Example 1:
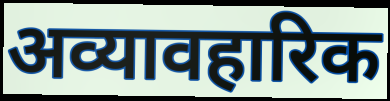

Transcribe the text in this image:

अव्यावहारिक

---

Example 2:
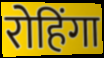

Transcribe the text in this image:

रोहिंगा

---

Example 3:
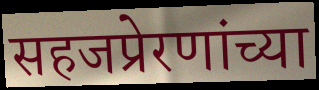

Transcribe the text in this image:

सहजप्रेरणांच्या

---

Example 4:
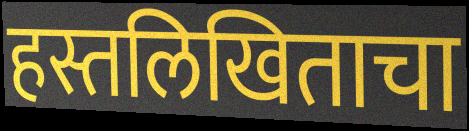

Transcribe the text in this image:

हस्तलिखिताचा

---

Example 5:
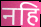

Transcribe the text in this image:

नहि